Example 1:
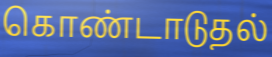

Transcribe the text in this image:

கொண்டாடுதல்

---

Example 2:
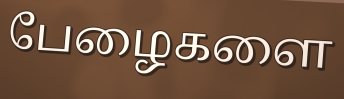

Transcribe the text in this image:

பேழைகளை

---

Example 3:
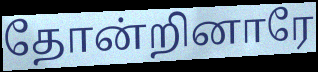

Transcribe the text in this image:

தோன்றினாரே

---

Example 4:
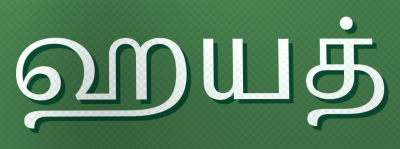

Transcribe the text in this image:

ஹயத்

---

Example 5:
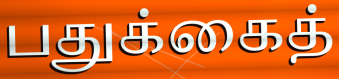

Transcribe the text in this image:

பதுக்கைத்